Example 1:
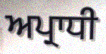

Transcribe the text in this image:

ਅਪ੍ਰਾਧੀ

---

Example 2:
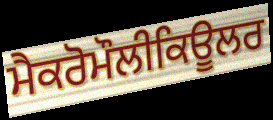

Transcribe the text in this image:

ਮੈਕਰੋਮੌਲੀਕਿਊਲਰ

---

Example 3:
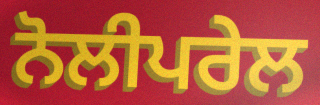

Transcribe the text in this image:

ਨੋਲੀਪਰੇਲ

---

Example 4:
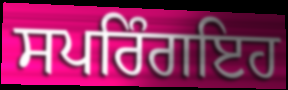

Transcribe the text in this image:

ਸਪਰਿੰਗਇਹ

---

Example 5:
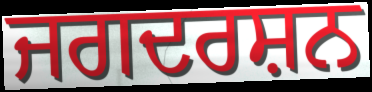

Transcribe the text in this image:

ਜਗਦਰਸ਼ਨ